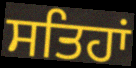
ਸਤਿਹਾਂ